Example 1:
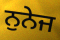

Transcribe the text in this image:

ਨੁਨੇਜ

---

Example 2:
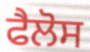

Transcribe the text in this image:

ਫੈਲੋਸ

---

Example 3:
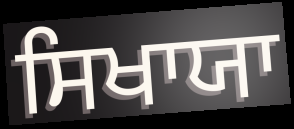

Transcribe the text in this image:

ਸਿਖਾਯਾ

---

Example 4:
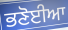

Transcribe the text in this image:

ਭਣੋਈਆ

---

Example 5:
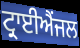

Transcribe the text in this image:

ਟ੍ਰਾਈਐਂਜਲ